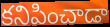
కనిపించాడా